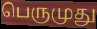
பெருமுது